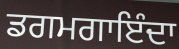
ਡਗਮਗਾਇੰਦਾ